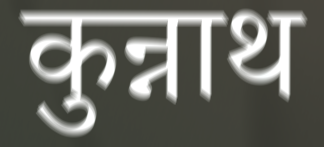
कुन्नाथ